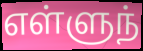
எள்ளுந்